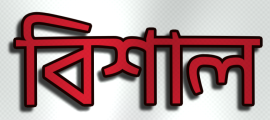
বিশাল